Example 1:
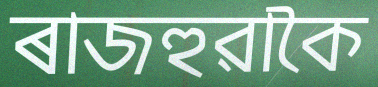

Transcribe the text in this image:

ৰাজহুৱাকৈ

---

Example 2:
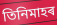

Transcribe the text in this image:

তিনিমাহৰ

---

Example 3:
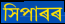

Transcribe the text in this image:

সিপাৰৰ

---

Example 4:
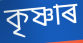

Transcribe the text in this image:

কৃষ্ণাৰ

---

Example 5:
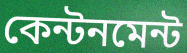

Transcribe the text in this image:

কেন্টনমেন্ট